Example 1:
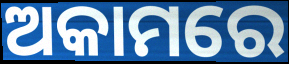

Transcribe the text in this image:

ଅକାମରେ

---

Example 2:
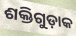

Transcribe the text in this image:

ଶକ୍ତିଗୁଡ଼ାକ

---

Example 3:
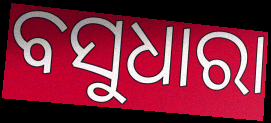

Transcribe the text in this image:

ବସୁଧାରା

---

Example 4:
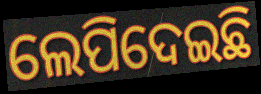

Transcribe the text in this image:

ଲେପିଦେଇଛି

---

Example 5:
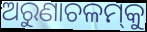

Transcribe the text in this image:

ଅରୁଣାଚଳମ୍‌କୁ